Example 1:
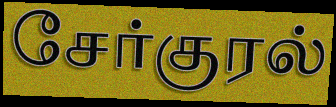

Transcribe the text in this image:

சேர்குரல்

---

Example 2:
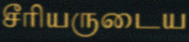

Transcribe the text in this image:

சீரியருடைய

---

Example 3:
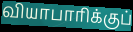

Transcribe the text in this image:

வியாபாரிக்குப்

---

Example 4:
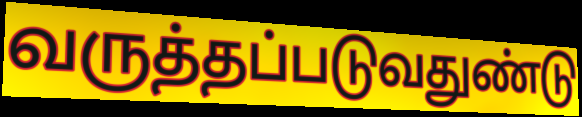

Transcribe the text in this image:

வருத்தப்படுவதுண்டு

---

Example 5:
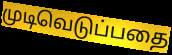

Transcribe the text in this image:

முடிவெடுப்பதை